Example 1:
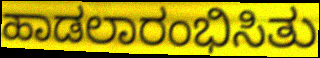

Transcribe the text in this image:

ಹಾಡಲಾರಂಭಿಸಿತು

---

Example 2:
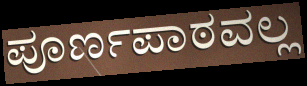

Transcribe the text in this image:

ಪೂರ್ಣಪಾಠವಲ್ಲ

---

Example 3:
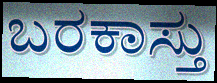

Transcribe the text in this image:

ಬರಕಾಸ್ತು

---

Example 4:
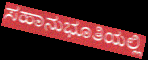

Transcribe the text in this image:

ಸಹಾನುಭೂತಿಯಲ್ಲಿ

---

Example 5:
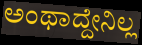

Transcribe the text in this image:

ಅಂಥಾದ್ದೇನಿಲ್ಲ